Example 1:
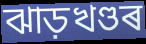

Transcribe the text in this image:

ঝাড়খণ্ডৰ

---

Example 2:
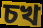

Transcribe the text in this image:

চখ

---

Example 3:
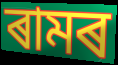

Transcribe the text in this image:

ৰামৰ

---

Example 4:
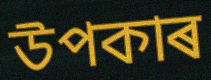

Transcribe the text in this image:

উপকাৰ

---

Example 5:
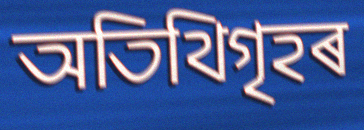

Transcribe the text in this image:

অতিথিগৃহৰ